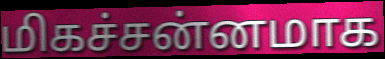
மிகச்சன்னமாக